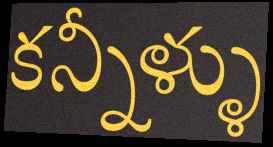
కన్నీళ్ళు